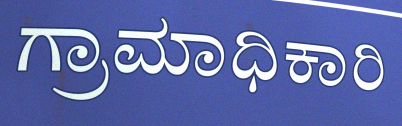
ಗ್ರಾಮಾಧಿಕಾರಿ